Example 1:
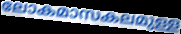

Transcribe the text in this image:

ലോകമാസകലമുള്ള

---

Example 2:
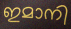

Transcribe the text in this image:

ഇമാനി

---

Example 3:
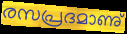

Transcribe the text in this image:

രസപ്രദമാണു്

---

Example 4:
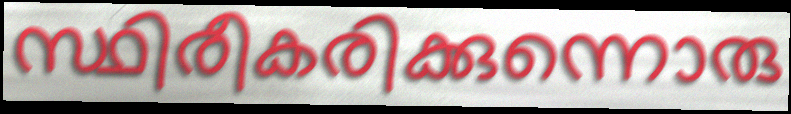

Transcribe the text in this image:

സ്ഥിരീകരിക്കുന്നൊരു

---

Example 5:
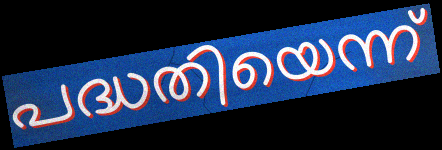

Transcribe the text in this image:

പദ്ധതിയെന്ന്